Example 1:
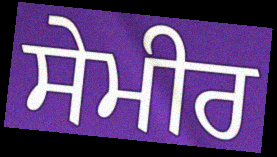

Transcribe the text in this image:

ਸੇਮੀਰ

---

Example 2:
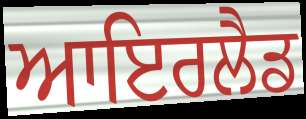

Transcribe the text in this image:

ਆਇਰਲੈਡ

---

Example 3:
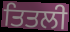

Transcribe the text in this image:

ਤਿਤਲੀ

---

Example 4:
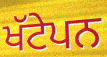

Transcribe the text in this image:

ਖੱਟੇਪਨ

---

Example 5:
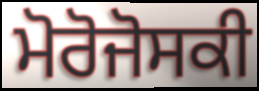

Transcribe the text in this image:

ਮੋਰੋਜੋਸਕੀ